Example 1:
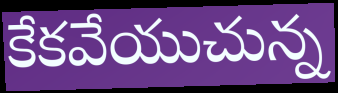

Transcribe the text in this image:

కేకవేయుచున్న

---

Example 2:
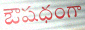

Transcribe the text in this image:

ఔషధంగా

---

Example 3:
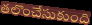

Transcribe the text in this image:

తలొంచేసుకుంది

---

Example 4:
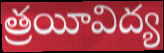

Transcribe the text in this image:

త్రయీవిద్య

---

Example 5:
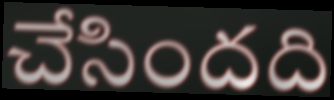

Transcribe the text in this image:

చేసిందది